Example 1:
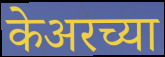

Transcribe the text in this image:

केअरच्या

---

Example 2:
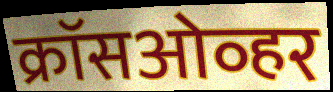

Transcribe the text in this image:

क्रॉसओव्हर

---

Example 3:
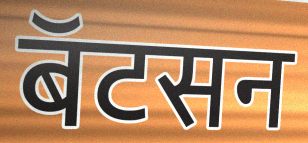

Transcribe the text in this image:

बॅटसन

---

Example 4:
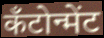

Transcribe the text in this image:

कँटोन्मेंट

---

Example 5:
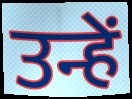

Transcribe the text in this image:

उन्हें